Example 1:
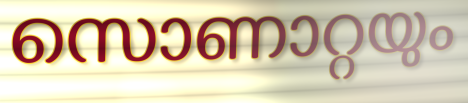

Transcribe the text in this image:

സൊണാറ്റയും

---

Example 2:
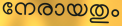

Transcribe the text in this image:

നേരായതും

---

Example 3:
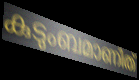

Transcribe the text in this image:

കുടുംബമാണിത്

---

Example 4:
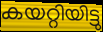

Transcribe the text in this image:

കയറ്റിയിട്ടു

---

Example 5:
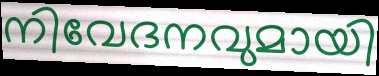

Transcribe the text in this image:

നിവേദനവുമായി